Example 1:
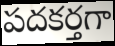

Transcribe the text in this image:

పదకర్తగా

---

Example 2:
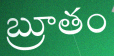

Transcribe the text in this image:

బ్రూతం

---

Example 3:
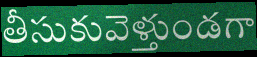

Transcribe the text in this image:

తీసుకువెళ్తుండగా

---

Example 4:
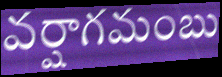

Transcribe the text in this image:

వర్షాగమంబు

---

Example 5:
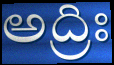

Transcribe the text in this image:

అద్రిః